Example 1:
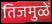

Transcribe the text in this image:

तिजमुळें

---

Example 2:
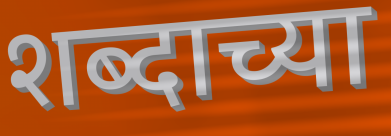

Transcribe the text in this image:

शब्दाच्या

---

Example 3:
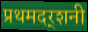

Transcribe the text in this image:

प्रथमदर्शनी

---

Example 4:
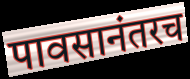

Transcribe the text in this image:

पावसानंतरच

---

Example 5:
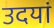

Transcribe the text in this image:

उदयां